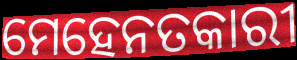
ମେହେନତକାରୀ